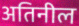
अतिनील